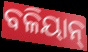
ବଳିୟାନ୍